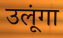
उलूंगा